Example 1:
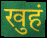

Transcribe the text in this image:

खुहं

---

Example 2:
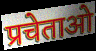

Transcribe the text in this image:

प्रचेताओ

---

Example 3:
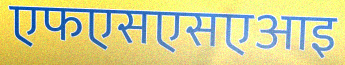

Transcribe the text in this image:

एफएसएसएआइ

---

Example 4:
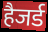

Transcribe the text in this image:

हैजर्ड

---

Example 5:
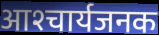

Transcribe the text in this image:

आश्चार्यजनक